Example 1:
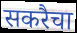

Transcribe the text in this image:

सकरैचा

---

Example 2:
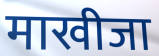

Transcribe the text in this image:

माखीजा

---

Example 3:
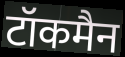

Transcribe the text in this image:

टॉकमैन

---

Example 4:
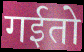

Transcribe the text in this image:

गईतो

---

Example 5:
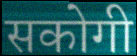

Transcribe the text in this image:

सकोगी